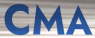
CMA